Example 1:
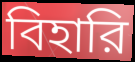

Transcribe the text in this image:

বিহারি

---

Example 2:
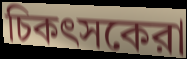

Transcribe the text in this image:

চিকৎসকেরা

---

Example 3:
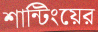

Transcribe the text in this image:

শান্টিংয়ের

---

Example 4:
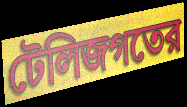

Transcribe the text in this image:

টেলিজগতের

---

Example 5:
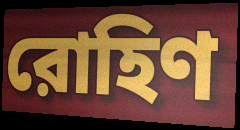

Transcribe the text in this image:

রোহিণ